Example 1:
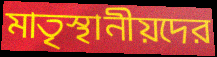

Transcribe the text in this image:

মাতৃস্থানীয়দের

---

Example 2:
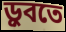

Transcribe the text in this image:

ড়ুবতে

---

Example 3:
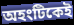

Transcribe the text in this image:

অহংটিকেই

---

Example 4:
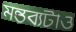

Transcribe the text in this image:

মন্তব্যটাও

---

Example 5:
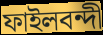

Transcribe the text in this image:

ফাইলবন্দী